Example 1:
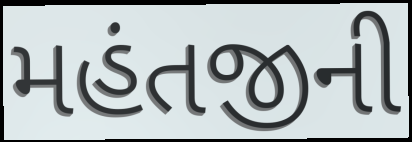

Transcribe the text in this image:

મહંતજીની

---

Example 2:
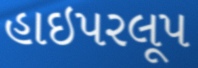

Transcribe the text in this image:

હાઇપરલૂપ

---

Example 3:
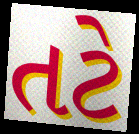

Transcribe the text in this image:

તટે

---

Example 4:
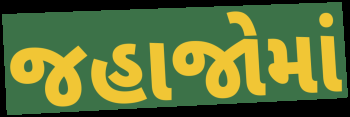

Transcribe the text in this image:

જહાજોમાં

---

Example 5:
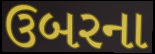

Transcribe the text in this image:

ઉબરના